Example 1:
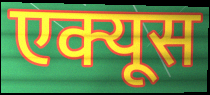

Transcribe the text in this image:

एक्यूस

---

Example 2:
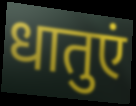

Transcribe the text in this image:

धातुएं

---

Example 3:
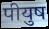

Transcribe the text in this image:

पीयुष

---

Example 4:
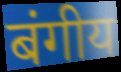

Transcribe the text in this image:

बंगीय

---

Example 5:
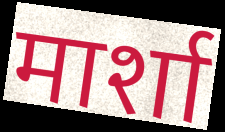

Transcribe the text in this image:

मार्शा